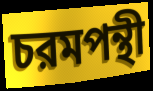
চরমপন্থী